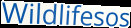
Wildlifesos